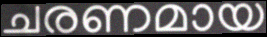
ചരണമായ